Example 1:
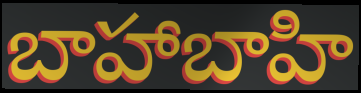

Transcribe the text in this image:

బాహాబాహి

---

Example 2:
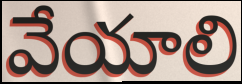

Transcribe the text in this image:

వేయాలి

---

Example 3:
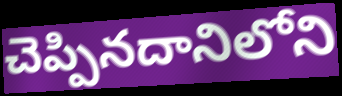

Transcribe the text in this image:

చెప్పినదానిలోని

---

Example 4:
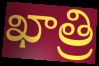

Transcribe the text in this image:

ఖాత్రి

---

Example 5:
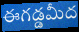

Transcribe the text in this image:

ఈగడ్డమీద